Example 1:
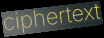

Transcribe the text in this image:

ciphertext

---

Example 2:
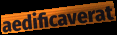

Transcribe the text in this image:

aedificaverat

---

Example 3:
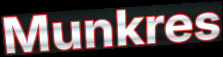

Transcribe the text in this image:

Munkres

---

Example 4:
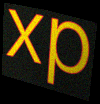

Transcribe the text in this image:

xp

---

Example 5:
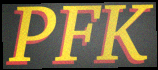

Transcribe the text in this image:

PFK